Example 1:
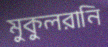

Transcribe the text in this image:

মুকুলরানি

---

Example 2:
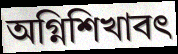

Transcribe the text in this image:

অগ্নিশিখাবৎ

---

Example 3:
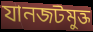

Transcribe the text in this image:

যানজটমুক্ত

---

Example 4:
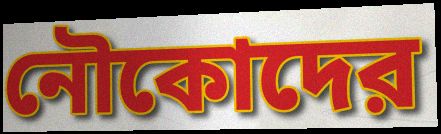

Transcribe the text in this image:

নৌকোদের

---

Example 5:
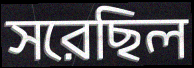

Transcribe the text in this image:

সরেছিল